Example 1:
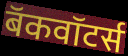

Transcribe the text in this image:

बॅकवॉटर्स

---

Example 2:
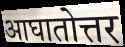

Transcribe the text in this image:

आघातोत्तर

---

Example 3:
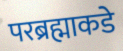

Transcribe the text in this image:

परब्रह्माकडे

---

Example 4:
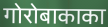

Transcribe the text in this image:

गोरोबाकाका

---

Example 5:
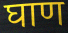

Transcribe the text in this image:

घाण